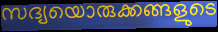
സദ്യയൊരുക്കങ്ങളുടെ